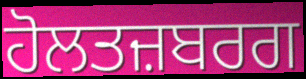
ਹੋਲਤਜ਼ਬਰਗ